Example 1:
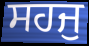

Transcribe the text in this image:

ਸਹਜੁ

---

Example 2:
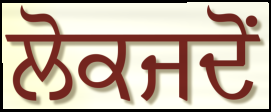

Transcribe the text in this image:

ਲੋਕਜਦੋਂ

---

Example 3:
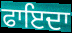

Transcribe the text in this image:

ਫਾਇਦਾ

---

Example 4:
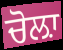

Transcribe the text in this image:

ਚੋਲ਼ਾ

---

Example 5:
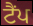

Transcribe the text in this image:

ਟੈਂਪ